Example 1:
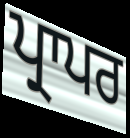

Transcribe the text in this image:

ਪ੍ਰਾਪਰ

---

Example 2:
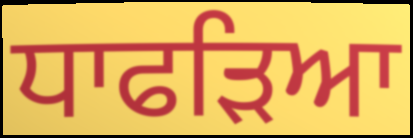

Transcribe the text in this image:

ਧਾਫੜਿਆ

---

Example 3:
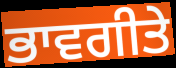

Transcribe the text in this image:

ਭਾਵਗੀਤੇ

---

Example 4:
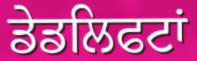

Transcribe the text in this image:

ਡੇਡਲਿਫਟਾਂ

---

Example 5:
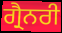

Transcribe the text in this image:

ਗ੍ਰੈਨਰੀ